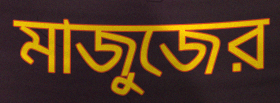
মাজুজের